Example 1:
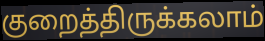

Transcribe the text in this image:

குறைத்திருக்கலாம்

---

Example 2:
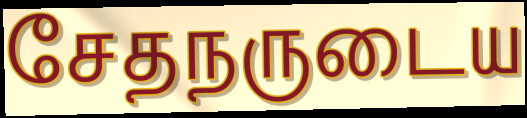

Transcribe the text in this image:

சேதநருடைய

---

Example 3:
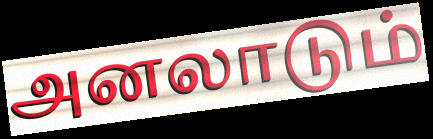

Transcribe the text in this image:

அனலாடும்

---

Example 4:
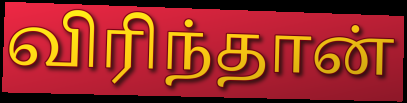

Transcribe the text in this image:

விரிந்தான்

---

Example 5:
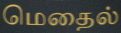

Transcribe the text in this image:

மெதைல்